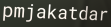
pmjakatdar